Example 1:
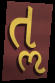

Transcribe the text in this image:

તૢ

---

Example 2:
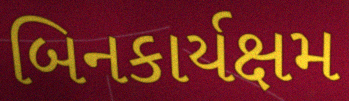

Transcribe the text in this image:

બિનકાર્યક્ષમ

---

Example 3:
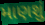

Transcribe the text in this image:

માણશું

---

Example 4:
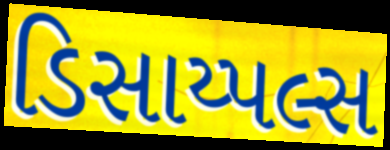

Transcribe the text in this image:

ડિસાય્પલ્સ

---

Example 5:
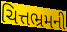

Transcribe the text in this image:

ચિત્તભ્રમની